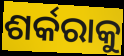
ଶର୍କରାକୁ